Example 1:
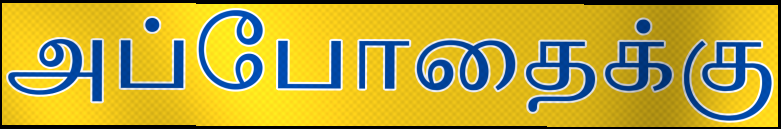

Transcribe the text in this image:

அப்போதைக்கு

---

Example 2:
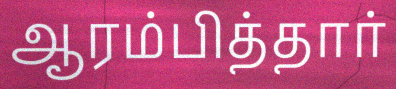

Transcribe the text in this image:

ஆரம்பித்தார்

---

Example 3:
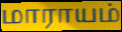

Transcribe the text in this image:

மாராயம்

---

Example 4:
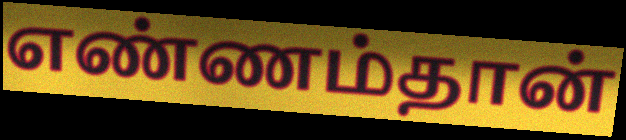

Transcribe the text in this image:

எண்ணம்தான்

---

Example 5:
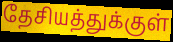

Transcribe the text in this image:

தேசியத்துக்குள்